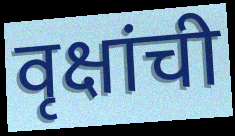
वृक्षांची